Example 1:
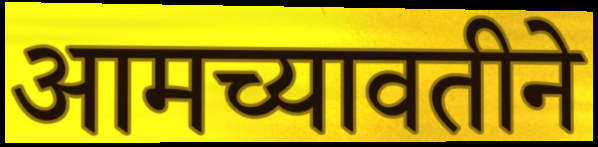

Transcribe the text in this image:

आमच्यावतीने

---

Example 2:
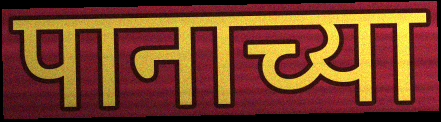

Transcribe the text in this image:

पानाच्या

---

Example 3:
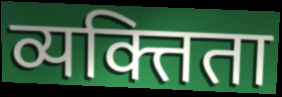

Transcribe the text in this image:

व्यक्तिता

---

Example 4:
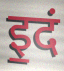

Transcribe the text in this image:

इ॒दं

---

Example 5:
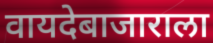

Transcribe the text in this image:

वायदेबाजाराला